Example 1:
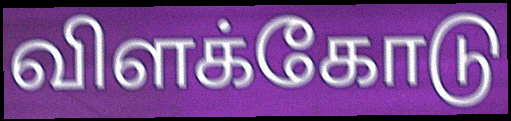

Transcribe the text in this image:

விளக்கோடு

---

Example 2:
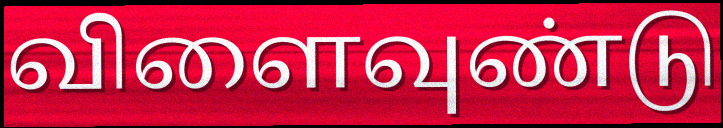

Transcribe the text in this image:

விளைவுண்டு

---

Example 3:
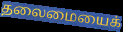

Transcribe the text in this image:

தலைமையைக்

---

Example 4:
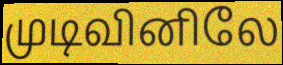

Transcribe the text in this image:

முடிவினிலே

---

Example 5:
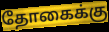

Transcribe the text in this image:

தோகைக்கு